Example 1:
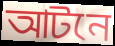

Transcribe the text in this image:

আটনে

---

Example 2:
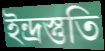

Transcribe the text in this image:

ইন্দ্রস্তুতি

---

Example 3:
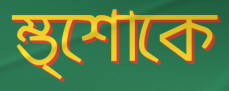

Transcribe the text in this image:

ম্ত্শোকে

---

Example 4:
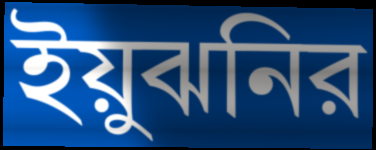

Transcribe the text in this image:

ইয়ুঝনির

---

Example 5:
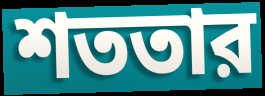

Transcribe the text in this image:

শততার